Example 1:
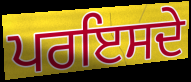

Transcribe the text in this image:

ਪਰਇਸਦੇ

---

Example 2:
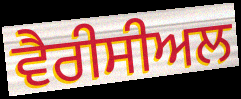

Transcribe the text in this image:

ਵੈਰੀਸੀਅਲ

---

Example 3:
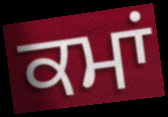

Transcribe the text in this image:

ਕਮਾਂ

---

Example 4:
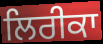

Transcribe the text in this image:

ਲਿਰੀਕਾ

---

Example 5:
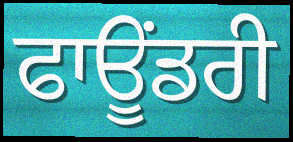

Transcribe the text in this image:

ਫਾਊਂਡਰੀ